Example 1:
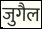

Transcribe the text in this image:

जुगैल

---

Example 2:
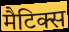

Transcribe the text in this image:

मैटिक्स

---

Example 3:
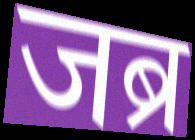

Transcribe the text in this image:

जब्र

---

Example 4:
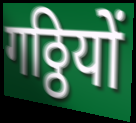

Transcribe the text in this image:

गठ्ठियों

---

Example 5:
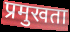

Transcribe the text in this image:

प्रमुखता